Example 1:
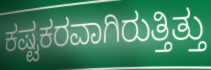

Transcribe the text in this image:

ಕಷ್ಟಕರವಾಗಿರುತ್ತಿತ್ತು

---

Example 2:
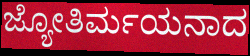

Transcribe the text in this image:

ಜ್ಯೋತಿರ್ಮಯನಾದ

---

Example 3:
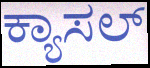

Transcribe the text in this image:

ಕ್ಯಾಸಲ್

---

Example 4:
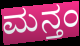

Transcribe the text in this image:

ಮನ್ತಂ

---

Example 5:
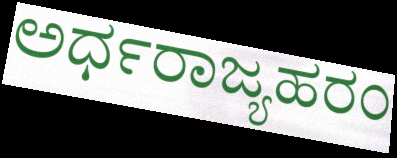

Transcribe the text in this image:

ಅರ್ಧರಾಜ್ಯಹರಂ